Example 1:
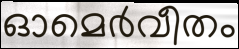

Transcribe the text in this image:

ഓമെർവീതം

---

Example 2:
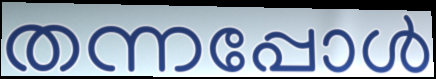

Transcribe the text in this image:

തന്നപ്പോൾ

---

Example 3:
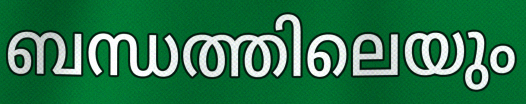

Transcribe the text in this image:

ബന്ധത്തിലെയും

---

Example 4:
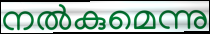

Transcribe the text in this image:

നൽകുമെന്നു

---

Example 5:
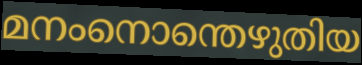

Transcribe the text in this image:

മനംനൊന്തെഴുതിയ